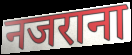
नजराना